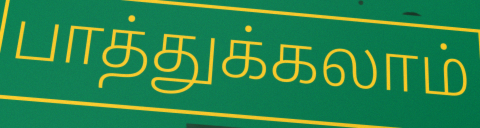
பாத்துக்கலாம்